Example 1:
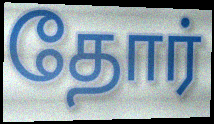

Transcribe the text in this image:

தோர்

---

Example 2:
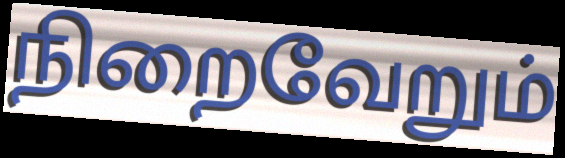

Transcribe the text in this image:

நிறைவேறும்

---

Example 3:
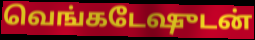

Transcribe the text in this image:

வெங்கடேஷுடன்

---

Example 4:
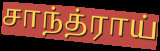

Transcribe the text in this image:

சாந்த்ராய்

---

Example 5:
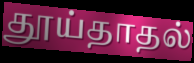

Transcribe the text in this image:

தூய்தாதல்